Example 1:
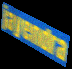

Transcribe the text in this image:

jayendra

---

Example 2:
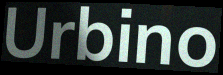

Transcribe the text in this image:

Urbino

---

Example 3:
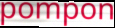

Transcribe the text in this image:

pompon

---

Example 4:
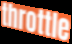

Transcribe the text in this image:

throttle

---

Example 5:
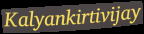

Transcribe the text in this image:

Kalyankirtivijay